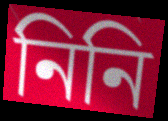
নিনি